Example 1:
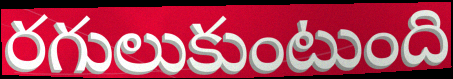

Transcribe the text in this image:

రగులుకుంటుంది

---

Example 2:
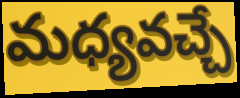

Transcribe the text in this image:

మధ్యవచ్చే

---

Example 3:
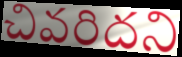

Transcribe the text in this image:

చివరిదని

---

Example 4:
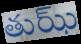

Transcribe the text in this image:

తుఝ్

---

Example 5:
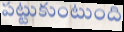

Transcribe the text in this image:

పట్టుకుంటుంది